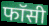
फॉसी